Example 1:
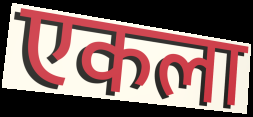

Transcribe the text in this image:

एकला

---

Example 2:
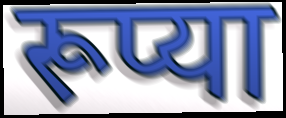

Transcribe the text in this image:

रूप्या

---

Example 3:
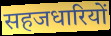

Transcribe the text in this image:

सहजधारियों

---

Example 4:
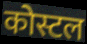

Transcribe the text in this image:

कोस्टल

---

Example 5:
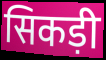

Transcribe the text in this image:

सिकड़ी